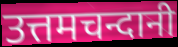
उत्तमचन्दानी